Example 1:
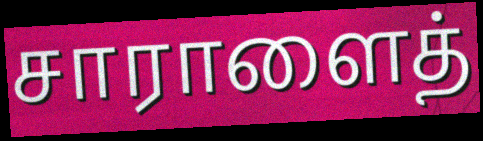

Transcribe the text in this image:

சாராளைத்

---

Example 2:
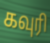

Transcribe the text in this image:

கவுரி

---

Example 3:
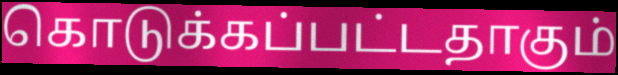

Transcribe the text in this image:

கொடுக்கப்பட்டதாகும்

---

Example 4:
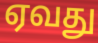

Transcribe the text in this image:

ஏவது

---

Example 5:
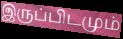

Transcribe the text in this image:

இருப்பிடமும்